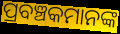
ପ୍ରବଞ୍ଚକମାନଙ୍କ